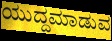
ಯುದ್ದಮಾಡುವ